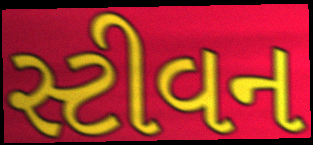
સ્ટીવન